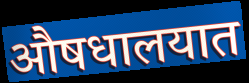
औषधालयात